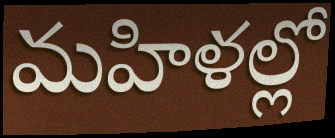
మహిళల్లో